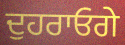
ਦੁਹਰਾਓਗੇ